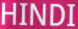
HINDI